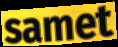
samet